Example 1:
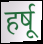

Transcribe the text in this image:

हर्षू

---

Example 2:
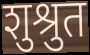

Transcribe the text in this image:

शुश्रुत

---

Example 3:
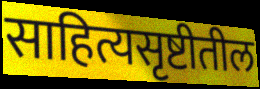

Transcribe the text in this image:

साहित्यसृष्टीतील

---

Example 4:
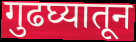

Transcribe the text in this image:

गुढघ्यातून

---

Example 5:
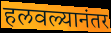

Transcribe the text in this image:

हलवल्यानंतर